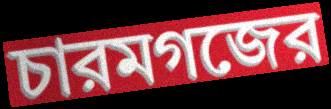
চারমগজের